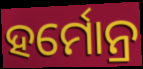
ହର୍ମୋନ୍ର